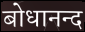
बोधानन्द